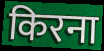
किरना